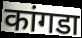
कांगडा